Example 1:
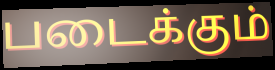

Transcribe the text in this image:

படைக்கும்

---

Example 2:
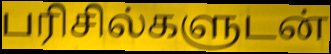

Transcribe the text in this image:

பரிசில்களுடன்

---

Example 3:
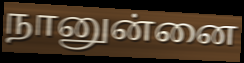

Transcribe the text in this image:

நானுன்னை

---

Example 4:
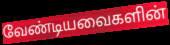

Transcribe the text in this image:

வேண்டியவைகளின்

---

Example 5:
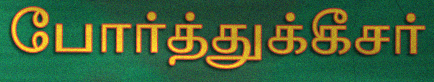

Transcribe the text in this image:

போர்த்துக்கீசர்